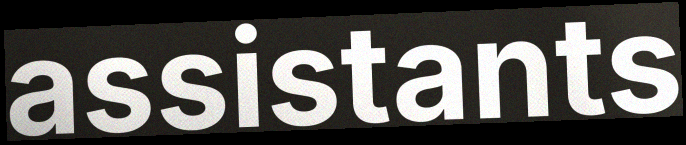
assistants